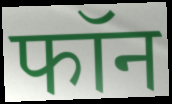
फॉन